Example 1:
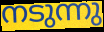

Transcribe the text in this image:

നടുന്നു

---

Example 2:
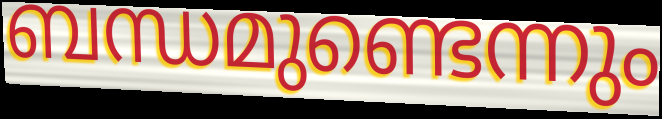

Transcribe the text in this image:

ബന്ധമുണ്ടെന്നും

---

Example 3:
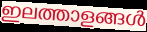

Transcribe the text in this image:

ഇലത്താളങ്ങൾ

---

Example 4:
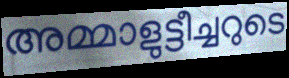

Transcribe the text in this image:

അമ്മാളുട്ടീച്ചറുടെ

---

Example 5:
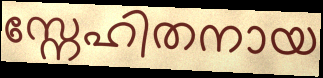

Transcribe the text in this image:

സ്നേഹിതനായ